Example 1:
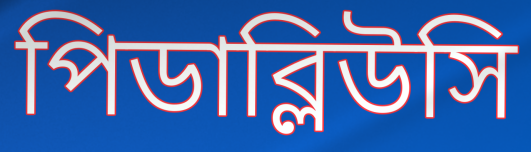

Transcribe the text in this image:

পিডাব্লিউসি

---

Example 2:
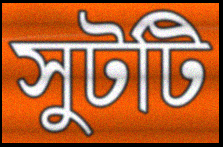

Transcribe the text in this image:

সুটটি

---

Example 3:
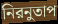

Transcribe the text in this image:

নিরনুতাপ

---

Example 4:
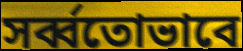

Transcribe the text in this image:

সর্ব্বতোভাবে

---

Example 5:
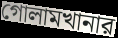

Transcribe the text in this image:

গোলামখানার